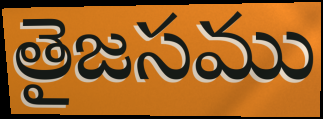
తైజసము